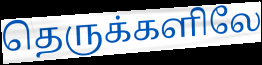
தெருக்களிலே